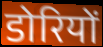
डोरियों